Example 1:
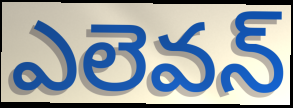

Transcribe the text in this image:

ఎలెవన్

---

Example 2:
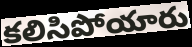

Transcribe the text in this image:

కలిసిపోయారు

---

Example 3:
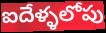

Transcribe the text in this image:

ఐదేళ్ళలోపు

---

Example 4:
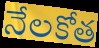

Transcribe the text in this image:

నేలకోత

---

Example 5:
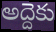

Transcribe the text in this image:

అద్దెకు